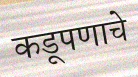
कडूपणाचे